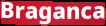
Braganca